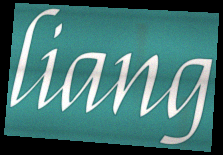
liang